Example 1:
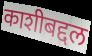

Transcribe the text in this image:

काशीबद्दल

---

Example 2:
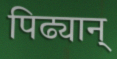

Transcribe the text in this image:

पिढ्यान्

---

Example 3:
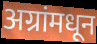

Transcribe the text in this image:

अग्रांमधून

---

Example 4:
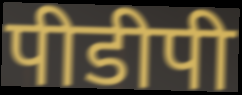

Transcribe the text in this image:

पीडीपी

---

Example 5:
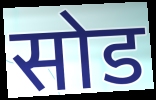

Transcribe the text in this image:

सोड